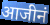
आजीनं